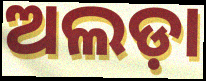
ଅଲଡ଼ା